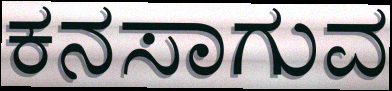
ಕನಸಾಗುವ